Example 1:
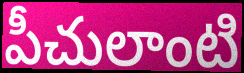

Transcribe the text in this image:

పీచులాంటి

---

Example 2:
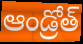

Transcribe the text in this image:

ఆండ్రోత్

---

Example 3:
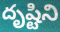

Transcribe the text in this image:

దృష్టిని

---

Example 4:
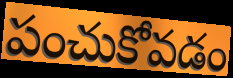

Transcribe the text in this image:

పంచుకోవడం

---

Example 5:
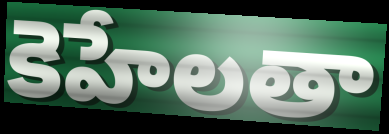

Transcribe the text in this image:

కెహేలతా